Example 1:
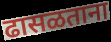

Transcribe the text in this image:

ढासळताना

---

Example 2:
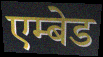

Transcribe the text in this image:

एम्बेड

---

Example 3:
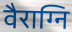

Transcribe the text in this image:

वैराग्नि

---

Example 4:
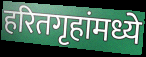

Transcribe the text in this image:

हरितगृहांमध्ये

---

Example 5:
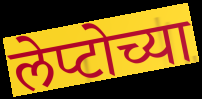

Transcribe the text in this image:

लेप्टोच्या